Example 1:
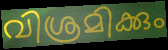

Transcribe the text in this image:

വിശ്രമിക്കും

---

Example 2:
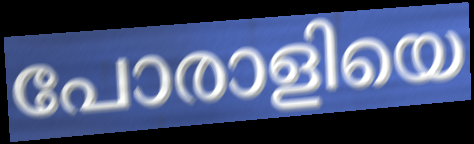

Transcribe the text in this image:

പോരാളിയെ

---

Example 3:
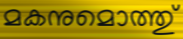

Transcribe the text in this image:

മകനുമൊത്തു്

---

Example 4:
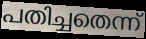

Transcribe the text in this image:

പതിച്ചതെന്ന്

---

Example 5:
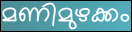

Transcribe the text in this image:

മണിമുഴക്കം